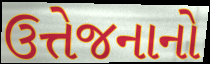
ઉત્તેજનાનો